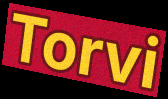
Torvi